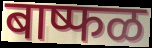
बाष्फळ